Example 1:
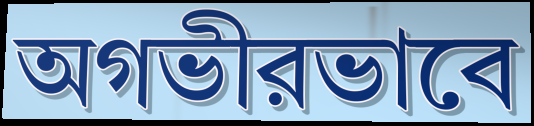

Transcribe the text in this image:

অগভীরভাবে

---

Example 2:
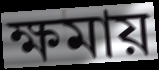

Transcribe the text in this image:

ক্ষমায়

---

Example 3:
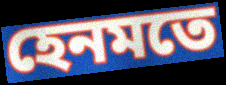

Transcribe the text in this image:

হেনমতে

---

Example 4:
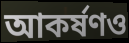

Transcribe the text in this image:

আকর্ষণও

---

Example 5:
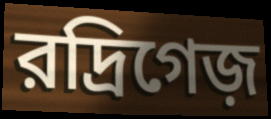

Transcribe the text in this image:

রদ্রিগেজ়